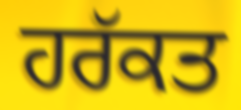
ਹਰੱਕਤ